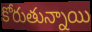
కోరుతున్నాయి